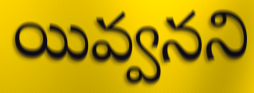
యివ్వనని